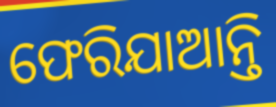
ଫେରିଯାଆନ୍ତି